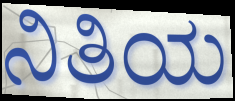
ನಿತಿಯ